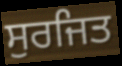
ਸੁਰਜਿਤ